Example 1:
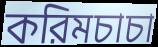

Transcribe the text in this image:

করিমচাচা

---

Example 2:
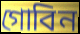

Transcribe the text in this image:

গোবিন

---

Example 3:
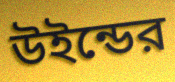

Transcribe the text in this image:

উইন্ডের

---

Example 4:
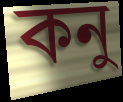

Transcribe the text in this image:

কনু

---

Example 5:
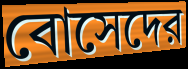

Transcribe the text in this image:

বোসেদের